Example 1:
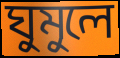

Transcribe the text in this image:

ঘুমুলে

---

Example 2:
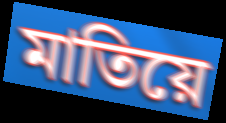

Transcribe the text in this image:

মাতিয়ে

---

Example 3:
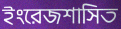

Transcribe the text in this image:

ইংরেজশাসিত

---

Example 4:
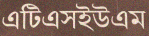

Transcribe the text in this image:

এটিএসইউএম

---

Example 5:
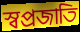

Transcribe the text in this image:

স্বপ্রজাতি